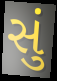
સું